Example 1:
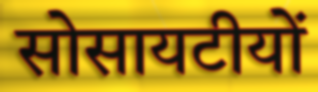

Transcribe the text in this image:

सोसायटीयों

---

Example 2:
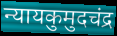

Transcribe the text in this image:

न्यायकुमुदचंद्र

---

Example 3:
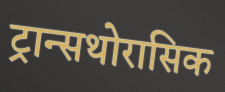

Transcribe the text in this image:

ट्रान्सथोरासिक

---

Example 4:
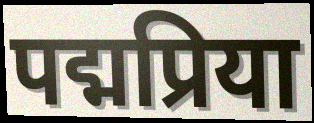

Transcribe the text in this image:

पद्मप्रिया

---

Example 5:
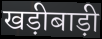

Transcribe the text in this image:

खड़ीबाड़ी